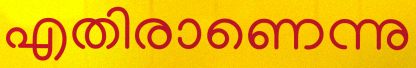
എതിരാണെന്നു